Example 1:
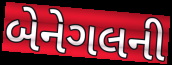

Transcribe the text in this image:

બેનેગલની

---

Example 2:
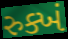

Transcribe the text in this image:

રુક્ખં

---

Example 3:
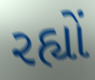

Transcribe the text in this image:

રહ્યોં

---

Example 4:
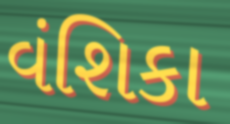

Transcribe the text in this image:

વંશિકા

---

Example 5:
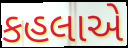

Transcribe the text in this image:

કહલાએ